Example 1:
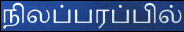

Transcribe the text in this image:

நிலப்பரப்பில்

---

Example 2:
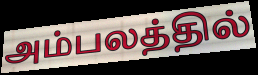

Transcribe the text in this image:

அம்பலத்தில்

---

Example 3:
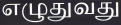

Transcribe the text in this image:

எழுதுவது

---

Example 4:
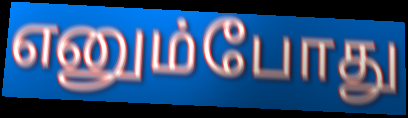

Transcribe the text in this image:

எனும்போது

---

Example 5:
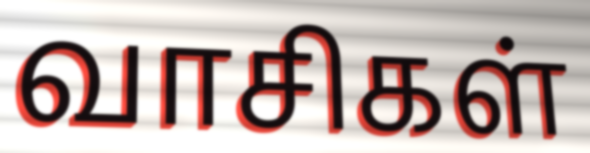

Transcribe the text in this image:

வாசிகள்